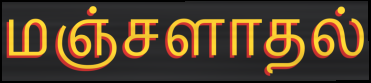
மஞ்சளாதல்